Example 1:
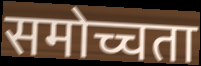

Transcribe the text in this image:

समोच्चता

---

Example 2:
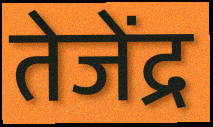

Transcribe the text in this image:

तेजेंद्र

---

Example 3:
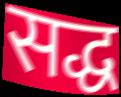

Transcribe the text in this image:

सद्ध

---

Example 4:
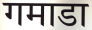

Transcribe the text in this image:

गमाडा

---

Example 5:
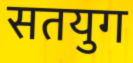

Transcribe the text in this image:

सतयुग